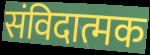
संविदात्मक